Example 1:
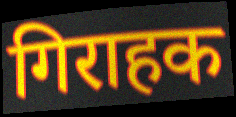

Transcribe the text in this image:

गिराहक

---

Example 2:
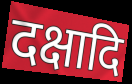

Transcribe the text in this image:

दक्षादि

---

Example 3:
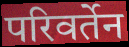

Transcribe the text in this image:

परिवर्तेन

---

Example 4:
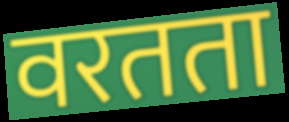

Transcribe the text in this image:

वरतता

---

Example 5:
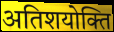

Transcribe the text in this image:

अतिशयोक्ति